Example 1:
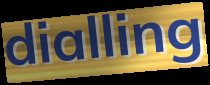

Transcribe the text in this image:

dialling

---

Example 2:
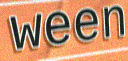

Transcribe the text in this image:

ween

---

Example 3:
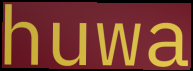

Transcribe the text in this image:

huwa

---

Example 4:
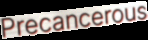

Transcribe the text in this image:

Precancerous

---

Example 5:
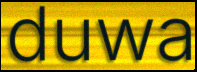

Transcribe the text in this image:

duwa